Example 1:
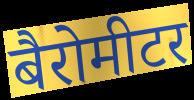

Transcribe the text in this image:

बैरोमीटर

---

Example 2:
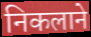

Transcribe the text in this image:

निकलाने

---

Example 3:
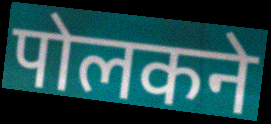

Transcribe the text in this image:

पोलकने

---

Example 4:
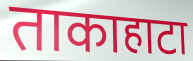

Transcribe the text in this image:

ताकाहाटा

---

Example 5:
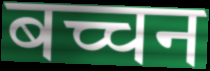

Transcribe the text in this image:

बच्‍चन